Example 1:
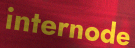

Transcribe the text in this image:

internode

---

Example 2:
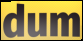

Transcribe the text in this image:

dum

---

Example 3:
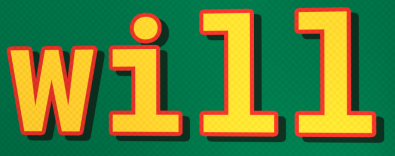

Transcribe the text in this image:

will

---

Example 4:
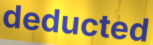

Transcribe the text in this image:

deducted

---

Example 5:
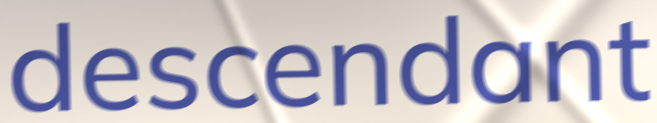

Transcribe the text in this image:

descendant